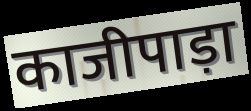
काजीपाड़ा